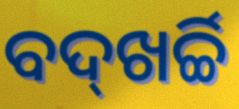
ବଦ୍‌ଖର୍ଚ୍ଚି